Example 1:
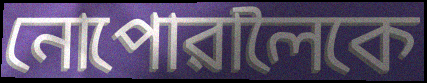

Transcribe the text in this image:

নোপোৱালৈকে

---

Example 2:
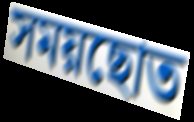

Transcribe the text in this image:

সময়ছোত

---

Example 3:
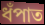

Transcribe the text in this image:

ধঁপাত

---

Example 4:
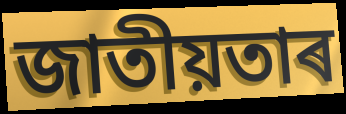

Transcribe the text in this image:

জাতীয়তাৰ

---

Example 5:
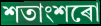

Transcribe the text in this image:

শতাংশৰো